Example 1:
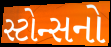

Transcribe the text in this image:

સ્ટોન્સનો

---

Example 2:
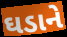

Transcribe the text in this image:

ઘડાને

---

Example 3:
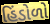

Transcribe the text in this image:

હિંડોળો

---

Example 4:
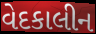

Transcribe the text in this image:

વેદકાલીન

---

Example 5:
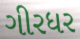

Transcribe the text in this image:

ગીરધર